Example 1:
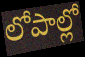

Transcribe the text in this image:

లోపాల్లో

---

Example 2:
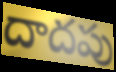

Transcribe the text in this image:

దాదపు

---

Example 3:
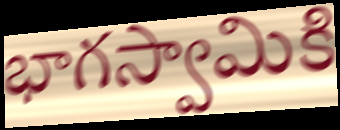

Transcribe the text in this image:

భాగస్వామికి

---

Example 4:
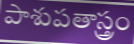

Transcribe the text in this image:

పాశుపతాస్త్రం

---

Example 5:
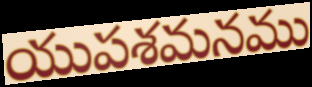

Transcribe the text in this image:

యుపశమనము